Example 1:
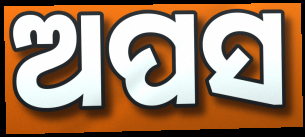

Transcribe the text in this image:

ଅପସ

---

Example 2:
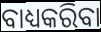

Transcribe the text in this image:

ବାଧ୍ୟକରିବା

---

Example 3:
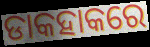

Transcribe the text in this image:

ଡାକହାକରେ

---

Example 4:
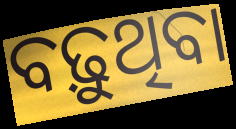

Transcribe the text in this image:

ବଢ଼ୁଥିବା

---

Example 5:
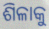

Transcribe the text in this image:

ଶିଳାକୁ